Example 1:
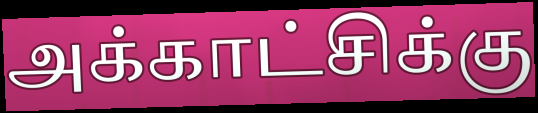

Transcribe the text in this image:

அக்காட்சிக்கு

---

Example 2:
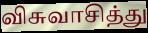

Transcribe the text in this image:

விசுவாசித்து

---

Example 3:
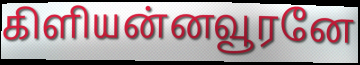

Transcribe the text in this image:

கிளியன்னவூரனே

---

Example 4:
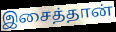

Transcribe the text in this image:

இசைத்தான்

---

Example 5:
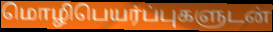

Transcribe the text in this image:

மொழிபெயர்ப்புகளுடன்